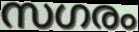
സഗരം